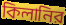
কিলানির